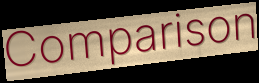
Comparison